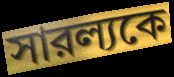
সারল্যকে